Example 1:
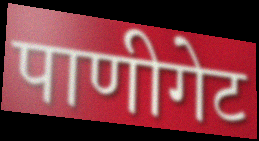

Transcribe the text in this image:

पाणीगेट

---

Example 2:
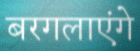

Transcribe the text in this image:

बरगलाएंगे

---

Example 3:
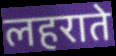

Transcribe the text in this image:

लहराते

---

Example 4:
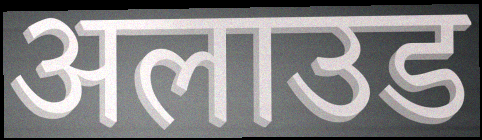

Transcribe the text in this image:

अलाउड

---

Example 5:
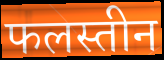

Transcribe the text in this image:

फलस्तीन